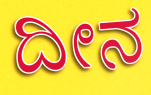
ದೀನ